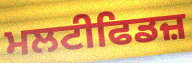
ਮਲਟੀਫਿਡਜ਼